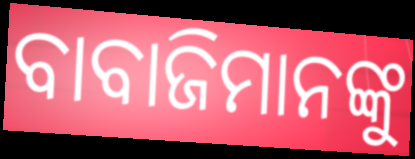
ବାବାଜିମାନଙ୍କୁ